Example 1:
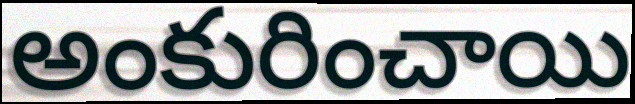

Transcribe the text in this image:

అంకురించాయి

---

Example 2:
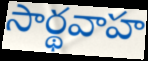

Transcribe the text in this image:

సార్థవాహ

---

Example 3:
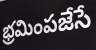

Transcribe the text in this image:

భ్రమింపజేసే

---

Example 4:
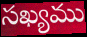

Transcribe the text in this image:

సఖ్యము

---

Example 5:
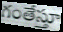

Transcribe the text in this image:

గంతేస్తూ